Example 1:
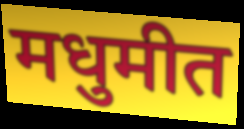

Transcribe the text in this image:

मधुमीत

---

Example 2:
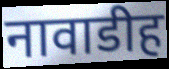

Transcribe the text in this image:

नावाडीह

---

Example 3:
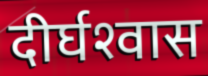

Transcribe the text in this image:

दीर्घश्वास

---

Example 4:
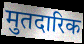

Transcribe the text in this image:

मुतदारिक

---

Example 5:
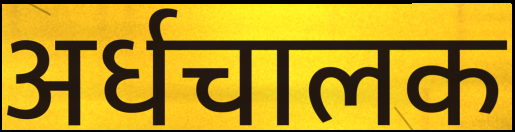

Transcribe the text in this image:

अर्धचालक